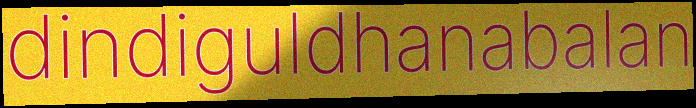
dindiguldhanabalan